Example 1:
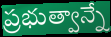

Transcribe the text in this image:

ప్రభుత్వాన్నే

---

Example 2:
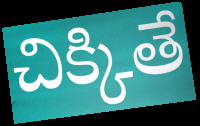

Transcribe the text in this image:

చిక్కితే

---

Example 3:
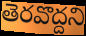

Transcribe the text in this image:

తెరవొద్దని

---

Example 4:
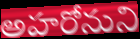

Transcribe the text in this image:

అహరోనుని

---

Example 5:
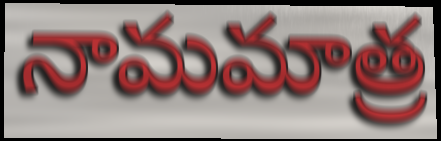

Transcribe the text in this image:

నామమాత్ర